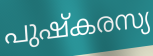
പുഷ്കരസ്യ